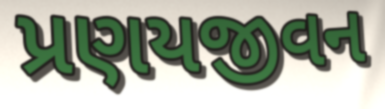
પ્રણયજીવન